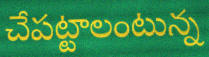
చేపట్టాలంటున్న